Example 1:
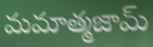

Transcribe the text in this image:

మమాత్మజామ్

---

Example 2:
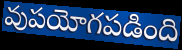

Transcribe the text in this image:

వుపయోగపడింది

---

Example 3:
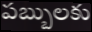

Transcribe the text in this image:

పబ్బులకు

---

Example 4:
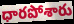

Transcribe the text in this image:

ధారపోశారు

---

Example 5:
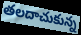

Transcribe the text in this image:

తలదాచుకున్న